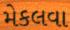
મેકલવા